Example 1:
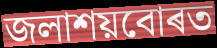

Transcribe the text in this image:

জলাশয়বোৰত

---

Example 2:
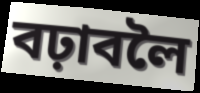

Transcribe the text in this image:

বঢ়াবলৈ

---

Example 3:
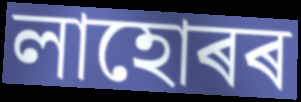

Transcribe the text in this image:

লাহোৰৰ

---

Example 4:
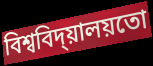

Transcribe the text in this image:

বিশ্ববিদ্য়ালয়তো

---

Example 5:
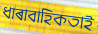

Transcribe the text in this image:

ধাৰাবাহিকতাই